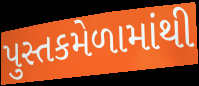
પુસ્તકમેળામાંથી